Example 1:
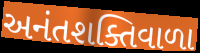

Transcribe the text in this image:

અનંતશક્તિવાળા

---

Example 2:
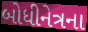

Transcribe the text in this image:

બોધીનેત્રના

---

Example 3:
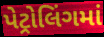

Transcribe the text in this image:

પેટ્રોલિંગમાં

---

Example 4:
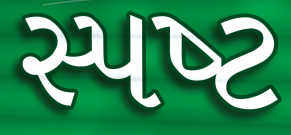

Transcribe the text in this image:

સ્પષ્‍ટ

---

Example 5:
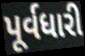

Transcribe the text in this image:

પૂર્વધારી